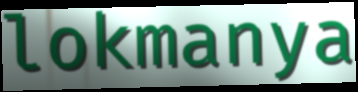
lokmanya